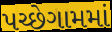
પચ્છેગામમાં